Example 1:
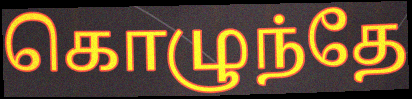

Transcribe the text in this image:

கொழுந்தே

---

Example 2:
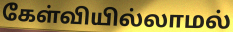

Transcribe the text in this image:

கேள்வியில்லாமல்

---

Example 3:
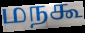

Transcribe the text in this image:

மநகூ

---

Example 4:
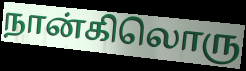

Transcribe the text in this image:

நான்கிலொரு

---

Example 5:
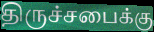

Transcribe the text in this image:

திருச்சபைக்கு